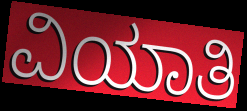
ವಿಯಾತಿ